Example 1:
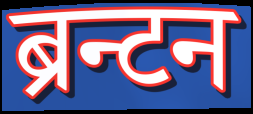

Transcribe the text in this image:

ब्रन्टन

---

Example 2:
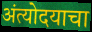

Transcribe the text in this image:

अंत्योदयाचा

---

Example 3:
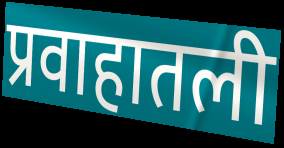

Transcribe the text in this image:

प्रवाहातली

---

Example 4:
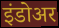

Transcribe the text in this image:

इंडोअर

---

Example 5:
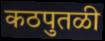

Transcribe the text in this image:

कठपुतळी